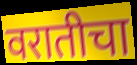
वरातीचा